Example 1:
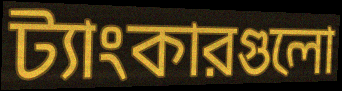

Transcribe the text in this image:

ট্যাংকারগুলো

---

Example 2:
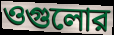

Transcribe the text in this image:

ওগুলোর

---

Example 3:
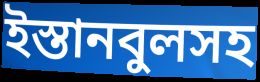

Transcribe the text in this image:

ইস্তানবুলসহ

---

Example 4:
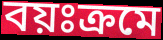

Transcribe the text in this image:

বয়ঃক্রমে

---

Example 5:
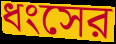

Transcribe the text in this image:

ধংসের